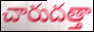
చారుదత్తా